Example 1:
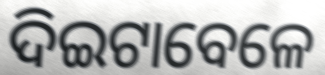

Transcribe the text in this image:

ଦିଇଟାବେଳେ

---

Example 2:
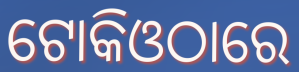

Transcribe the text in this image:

ଟୋକିଓଠାରେ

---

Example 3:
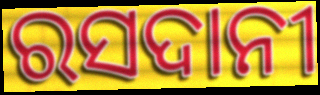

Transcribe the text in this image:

ରସଦାନୀ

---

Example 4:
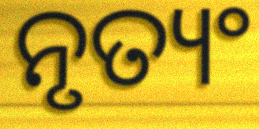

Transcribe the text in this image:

ନୃତ୍ୟଂ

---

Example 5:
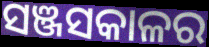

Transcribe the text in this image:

ସଞ୍ଜସକାଳର